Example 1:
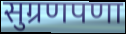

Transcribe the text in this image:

सुग्रणपणा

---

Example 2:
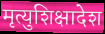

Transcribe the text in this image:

मृत्युशिक्षादेश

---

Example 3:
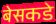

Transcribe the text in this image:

बेसकडे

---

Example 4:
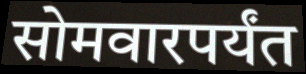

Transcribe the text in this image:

सोमवारपर्यंत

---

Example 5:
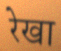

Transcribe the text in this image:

रेखा